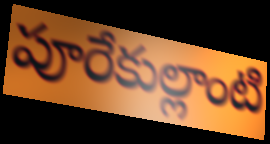
పూరేకుల్లాంటి